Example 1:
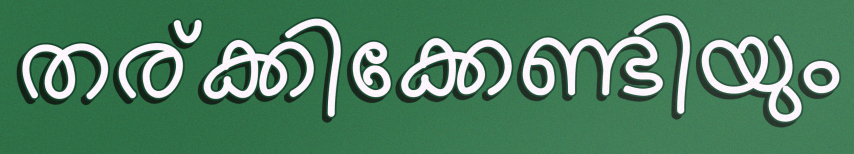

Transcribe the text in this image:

തര്ക്കിക്കേണ്ടിയും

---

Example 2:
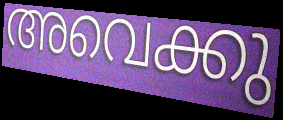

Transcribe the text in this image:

അവെക്കു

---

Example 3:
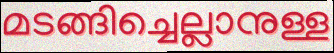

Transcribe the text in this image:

മടങ്ങിച്ചെല്ലാനുള്ള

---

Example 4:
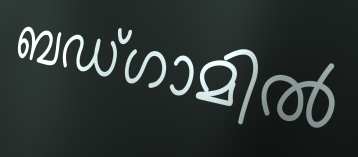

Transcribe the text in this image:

ബഡ്ഗാമിൽ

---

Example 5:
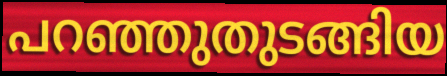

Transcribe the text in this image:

പറഞ്ഞുതുടങ്ങിയ